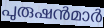
പുരുഷൻമാർ